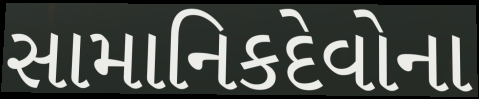
સામાનિકદેવોના